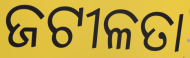
ଜଟୀଳତା